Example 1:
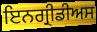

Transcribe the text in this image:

ਇਨਗ੍ਰੀਡੀਅਸ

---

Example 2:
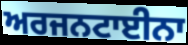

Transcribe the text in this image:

ਅਰਜਨਟਾਈਨਾ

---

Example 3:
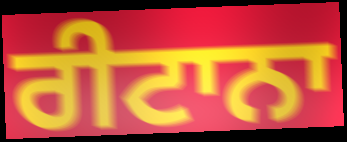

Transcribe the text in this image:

ਰੀਟਾਨਾ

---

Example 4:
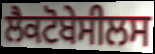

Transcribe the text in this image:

ਲੈਕਟੋਬੇਸੀਲਸ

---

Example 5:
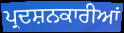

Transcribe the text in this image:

ਪ੍ਰਦਸ਼ਨਕਾਰੀਆਂ